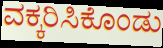
ವಕ್ಕರಿಸಿಕೊಂಡು